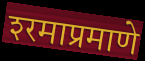
श्रमाप्रमाणे